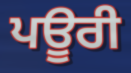
ਪਊਰੀ